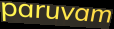
paruvam